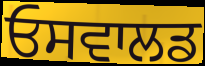
ਓਸਵਾਲਡ